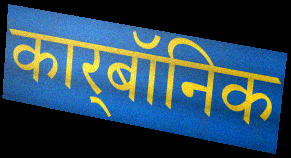
कार्‌बॉनिक